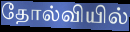
தோல்வியில்